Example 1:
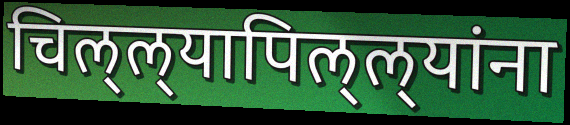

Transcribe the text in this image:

चिल्ल्यापिल्ल्यांना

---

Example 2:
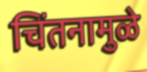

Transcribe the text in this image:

चिंतनामुळे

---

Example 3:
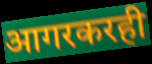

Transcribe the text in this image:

आगरकरही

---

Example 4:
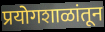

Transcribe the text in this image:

प्रयोगशाळांतून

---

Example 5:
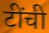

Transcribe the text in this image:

टींची